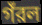
গঁরল